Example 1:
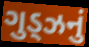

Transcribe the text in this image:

ગુડ્ઝનું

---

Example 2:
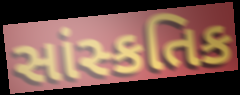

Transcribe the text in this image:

સાંસ્કતિક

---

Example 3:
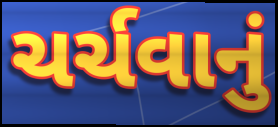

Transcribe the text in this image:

ચર્ચવાનું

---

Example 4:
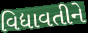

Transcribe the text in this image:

વિદ્યાવતીને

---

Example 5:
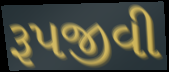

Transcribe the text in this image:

રૂપજીવી